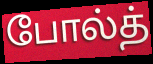
போல்த்